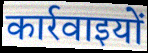
कार्रवाइयों